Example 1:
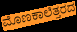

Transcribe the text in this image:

ಮೊಣಕಾಲೆತ್ತರದ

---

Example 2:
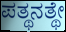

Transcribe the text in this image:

ಪತ್ಥನತ್ಥೇ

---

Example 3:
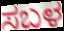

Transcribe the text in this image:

ಸಬಳ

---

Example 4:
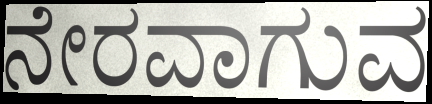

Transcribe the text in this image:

ನೇರವಾಗುವ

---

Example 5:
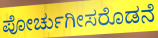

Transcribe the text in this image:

ಪೋರ್ಚುಗೀಸರೊಡನೆ